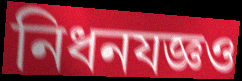
নিধনযজ্ঞও